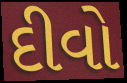
દીવો